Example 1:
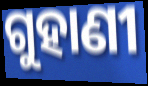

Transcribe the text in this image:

ଗୁହାଣୀ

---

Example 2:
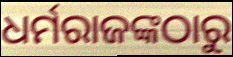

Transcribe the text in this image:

ଧର୍ମରାଜଙ୍କଠାରୁ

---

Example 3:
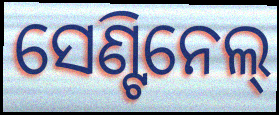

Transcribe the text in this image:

ସେଣ୍ଟିନେଲ୍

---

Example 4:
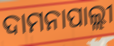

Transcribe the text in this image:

ଦାମନାପାଲ୍ଲୀ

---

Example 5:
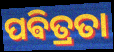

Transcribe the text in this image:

ପଵିତ୍ରତା